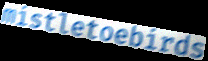
mistletoebirds